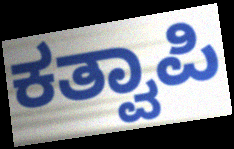
ಕತ್ವಾಪಿ